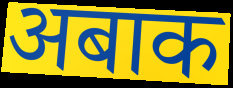
अबाक